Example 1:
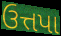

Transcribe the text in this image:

ઉત્તપા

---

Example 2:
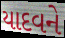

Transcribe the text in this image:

યાદવને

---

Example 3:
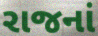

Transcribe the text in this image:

રાજનાં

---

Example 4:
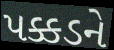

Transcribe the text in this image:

પક્કડને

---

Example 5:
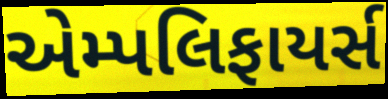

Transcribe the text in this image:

એમ્પલિફાયર્સ